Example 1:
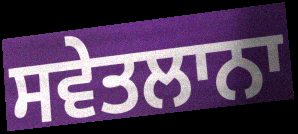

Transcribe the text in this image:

ਸਵੇਤਲਾਨਾ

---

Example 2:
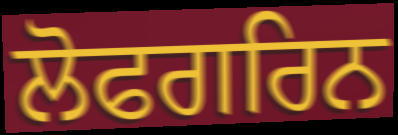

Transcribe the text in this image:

ਲੋਫਗਰਿਨ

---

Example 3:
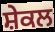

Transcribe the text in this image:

ਸ਼ੇਕਲ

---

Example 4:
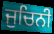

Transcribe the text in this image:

ਜੁਚਿਨੀ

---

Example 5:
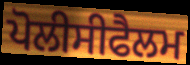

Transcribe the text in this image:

ਪੋਲੀਸੀਫੈਲਮ